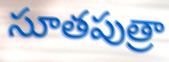
సూతపుత్రా